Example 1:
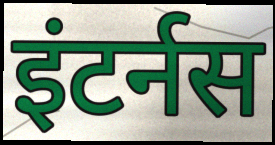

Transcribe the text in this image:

इंटर्नस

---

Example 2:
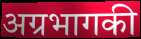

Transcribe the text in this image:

अग्रभागकी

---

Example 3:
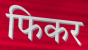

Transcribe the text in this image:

फिकर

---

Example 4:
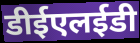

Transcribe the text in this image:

डीईएलईडी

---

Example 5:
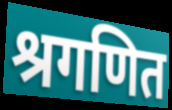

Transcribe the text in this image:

श्रगणित